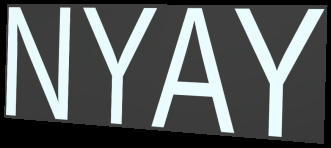
NYAY